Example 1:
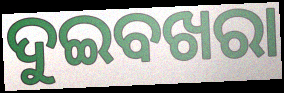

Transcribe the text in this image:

ଦୁଇବଖରା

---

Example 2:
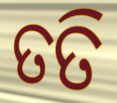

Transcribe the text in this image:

ତତି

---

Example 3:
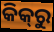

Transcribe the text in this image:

କିକ୍‍ରୁ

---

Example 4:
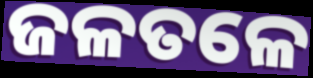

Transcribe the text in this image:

ଜଳତଳେ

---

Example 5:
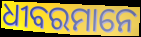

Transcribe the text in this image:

ଧୀବରମାନେ